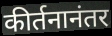
कीर्तनानंतर